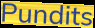
Pundits